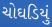
ચોઘડિયું